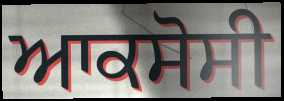
ਆਕਸੋਸੀ